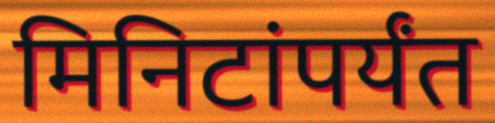
मिनिटांपर्यंत